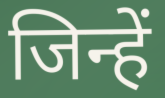
जिन्हें